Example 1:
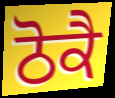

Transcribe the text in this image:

ਠੋਕੈ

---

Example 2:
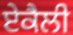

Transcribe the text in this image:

ਏਕੈਲੀ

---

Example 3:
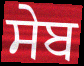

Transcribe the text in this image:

ਸੇਬ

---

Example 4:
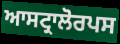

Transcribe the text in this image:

ਆਸਟ੍ਰਾਲੋਰਪਸ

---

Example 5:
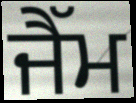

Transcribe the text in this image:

ਜੈੱਮ